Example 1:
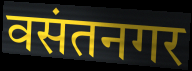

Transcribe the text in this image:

वसंतनगर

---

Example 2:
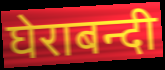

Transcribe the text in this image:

घेराबन्दी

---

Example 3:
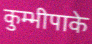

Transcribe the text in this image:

कुम्भीपाके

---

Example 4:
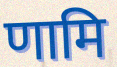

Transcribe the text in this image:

णामि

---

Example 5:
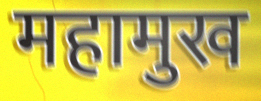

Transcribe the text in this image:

महामुख